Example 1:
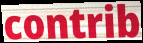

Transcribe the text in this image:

contrib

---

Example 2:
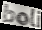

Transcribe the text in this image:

boli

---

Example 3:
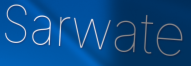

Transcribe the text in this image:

Sarwate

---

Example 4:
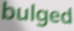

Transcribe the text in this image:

bulged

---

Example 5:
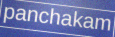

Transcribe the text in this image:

panchakam